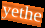
yethe